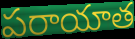
పరాయాత